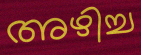
അഴിച്ച